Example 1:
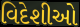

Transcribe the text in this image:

વિદેશીઓ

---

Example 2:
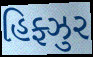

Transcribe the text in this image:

હિફ્ઝુર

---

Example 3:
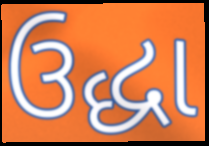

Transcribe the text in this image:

ઉદ્ધા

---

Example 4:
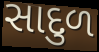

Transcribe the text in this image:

સાદુળ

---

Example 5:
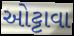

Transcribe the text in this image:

ઓટ્ટાવા